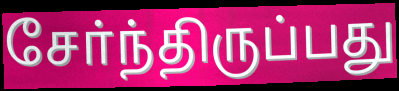
சேர்ந்திருப்பது